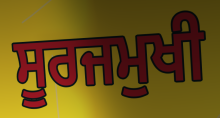
ਸੂਰਜਮੁਖੀ